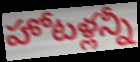
హోటళ్లన్నీ